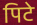
पिटे